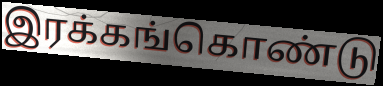
இரக்கங்கொண்டு